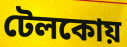
টেলকোয়